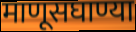
माणूसघाण्या